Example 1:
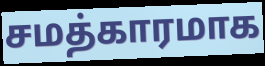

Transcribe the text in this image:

சமத்காரமாக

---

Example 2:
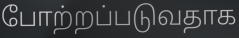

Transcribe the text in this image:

போற்றப்படுவதாக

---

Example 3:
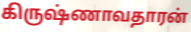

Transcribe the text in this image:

கிருஷ்ணாவதாரன்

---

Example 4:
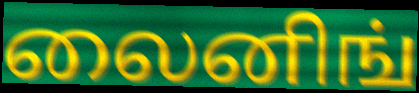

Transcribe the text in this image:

லைனிங்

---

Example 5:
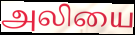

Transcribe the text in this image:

அலியை